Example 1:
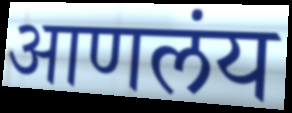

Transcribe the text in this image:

आणलंय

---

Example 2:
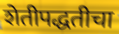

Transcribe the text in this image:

शेतीपद्धतीचा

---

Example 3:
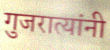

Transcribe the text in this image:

गुजरात्यांनी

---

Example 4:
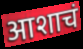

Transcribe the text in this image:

आशाचं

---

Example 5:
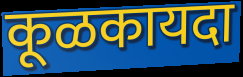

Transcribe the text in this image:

कूळकायदा